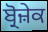
ਬ੍ਰੋਜ਼ੇਕ